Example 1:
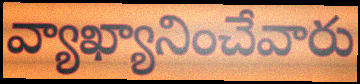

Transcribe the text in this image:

వ్యాఖ్యానించేవారు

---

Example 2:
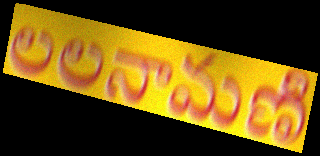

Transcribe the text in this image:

లలనామణి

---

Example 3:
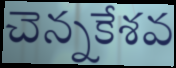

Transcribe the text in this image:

చెన్నకేశవ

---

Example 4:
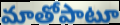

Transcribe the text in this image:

మాతోపాటూ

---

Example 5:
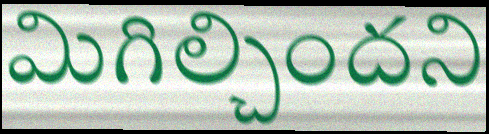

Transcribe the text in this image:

మిగిల్చిందని